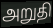
அறுதி